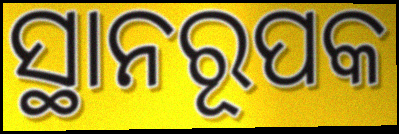
ସ୍ଥାନରୂପକ